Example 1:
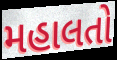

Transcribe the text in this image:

મહાલતો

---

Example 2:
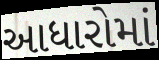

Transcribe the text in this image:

આધારોમાં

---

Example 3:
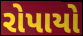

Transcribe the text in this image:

રોપાયો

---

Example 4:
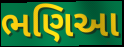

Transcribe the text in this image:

ભણિઆ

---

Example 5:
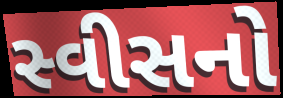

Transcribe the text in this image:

સ્વીસનો